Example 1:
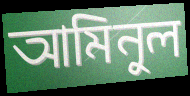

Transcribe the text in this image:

আমিনুল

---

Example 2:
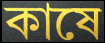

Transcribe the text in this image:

কাষে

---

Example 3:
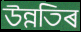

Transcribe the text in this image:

উন্নতিৰ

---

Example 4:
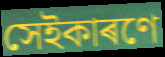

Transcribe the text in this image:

সেইকাৰণে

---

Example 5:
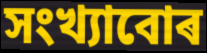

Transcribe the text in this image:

সংখ্যাবোৰ